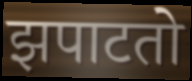
झपाटतो